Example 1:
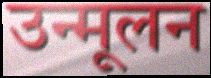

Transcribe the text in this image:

उन्‍मूलन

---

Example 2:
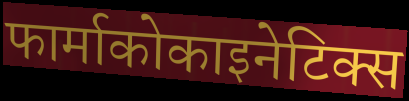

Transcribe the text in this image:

फार्माकोकाइनेटिक्स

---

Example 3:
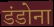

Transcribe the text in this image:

डंडोना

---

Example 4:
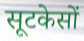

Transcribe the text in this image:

सूटकेसों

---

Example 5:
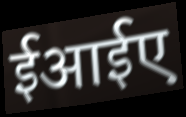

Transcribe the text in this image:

ईआईए